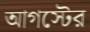
আগস্টের